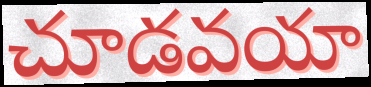
చూడవయా